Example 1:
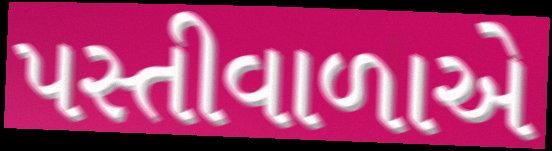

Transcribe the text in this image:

પસ્તીવાળાએ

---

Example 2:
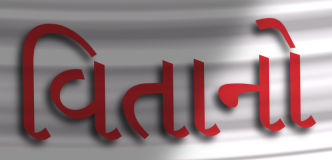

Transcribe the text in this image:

વિતાનો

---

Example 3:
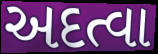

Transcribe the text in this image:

અદત્વા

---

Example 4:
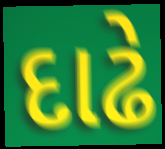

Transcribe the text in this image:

દાઢે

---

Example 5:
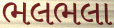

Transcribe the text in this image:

ભલભલા